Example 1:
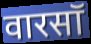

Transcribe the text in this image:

वारसॉ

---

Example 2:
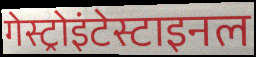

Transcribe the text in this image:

गेस्ट्रोइंटेस्टाइनल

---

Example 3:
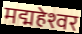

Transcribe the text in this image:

मद्महेश्वर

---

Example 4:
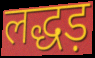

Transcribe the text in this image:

लद्धड़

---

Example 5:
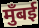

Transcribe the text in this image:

मुँबई